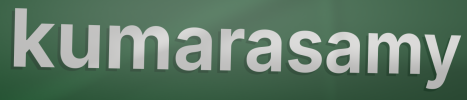
kumarasamy